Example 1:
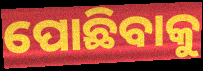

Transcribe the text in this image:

ପୋଛିବାକୁ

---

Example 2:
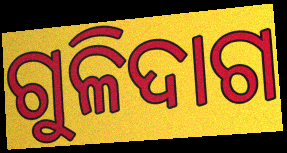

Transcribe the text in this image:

ଗୁଳିଦାଗ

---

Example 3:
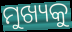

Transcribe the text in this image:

ମୁଖ୍ୟକୁ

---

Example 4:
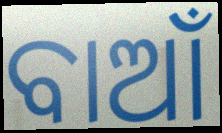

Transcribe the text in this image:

ବାଆଁ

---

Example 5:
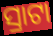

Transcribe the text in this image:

ସ୍ରାଟା